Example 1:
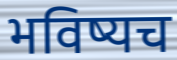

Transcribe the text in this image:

भविष्यच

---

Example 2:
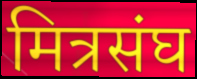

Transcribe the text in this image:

मित्रसंघ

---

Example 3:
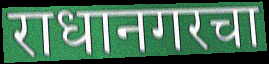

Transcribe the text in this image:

राधानगरचा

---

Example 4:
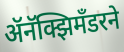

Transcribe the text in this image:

ॲनॅक्झिमँडरने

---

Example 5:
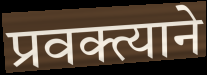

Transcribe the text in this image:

प्रवक्त्याने